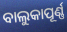
ବାଲୁକାପୂର୍ଣ୍ଣ